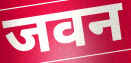
जवन